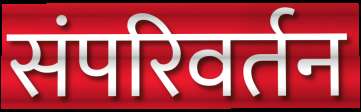
संपरिवर्तन